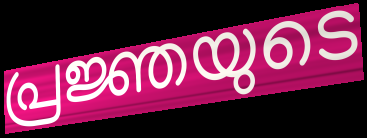
പ്രജ്ഞയുടെ